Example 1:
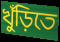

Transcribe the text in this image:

খুঁড়িতে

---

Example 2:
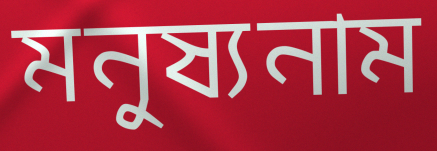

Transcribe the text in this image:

মনুষ্যনাম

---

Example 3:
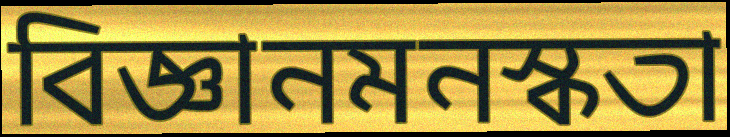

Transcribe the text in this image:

বিজ্ঞানমনস্কতা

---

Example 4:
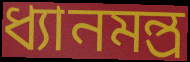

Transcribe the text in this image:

ধ্যানমন্ত্র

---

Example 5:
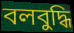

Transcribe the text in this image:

বলবুদ্ধি